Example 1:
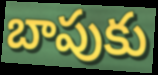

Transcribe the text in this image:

బాపుకు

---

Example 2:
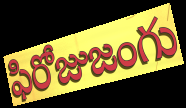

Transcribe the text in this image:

ఫిరోజుజంగు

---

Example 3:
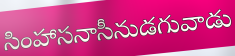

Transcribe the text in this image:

సింహాసనాసీనుడగువాడు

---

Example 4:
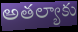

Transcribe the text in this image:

అతల్యాకు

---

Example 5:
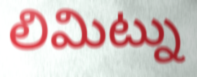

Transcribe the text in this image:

లిమిట్ను